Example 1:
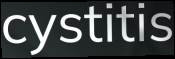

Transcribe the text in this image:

cystitis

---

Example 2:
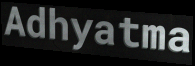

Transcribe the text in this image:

Adhyatma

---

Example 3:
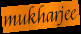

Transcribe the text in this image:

mukharjee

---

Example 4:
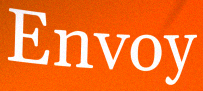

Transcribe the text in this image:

Envoy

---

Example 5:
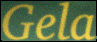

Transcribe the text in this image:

Gela